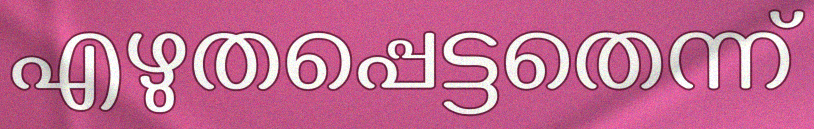
എഴുതപ്പെട്ടതെന്ന്